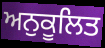
ਅਨੁਕੂਲਿਤ